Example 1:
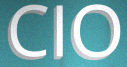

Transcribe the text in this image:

CIO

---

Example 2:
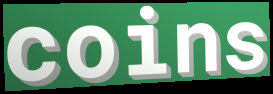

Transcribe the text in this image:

coins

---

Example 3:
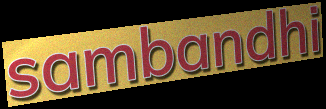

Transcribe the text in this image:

sambandhi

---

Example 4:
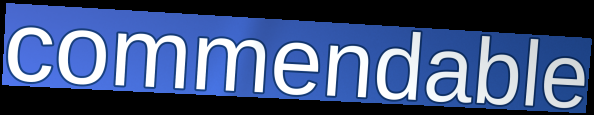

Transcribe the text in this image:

commendable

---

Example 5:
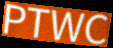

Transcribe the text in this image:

PTWC